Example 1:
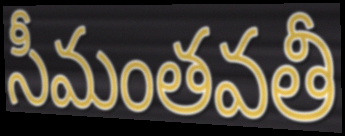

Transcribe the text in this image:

సీమంతవతీ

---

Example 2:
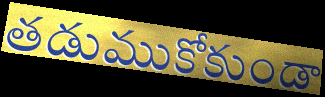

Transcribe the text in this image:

తడుముకోకుండా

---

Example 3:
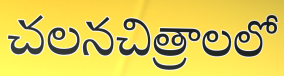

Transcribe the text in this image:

చలనచిత్రాలలో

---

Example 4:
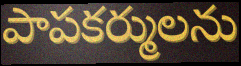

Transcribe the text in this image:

పాపకర్ములను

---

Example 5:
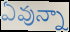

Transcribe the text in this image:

ఏవున్నా